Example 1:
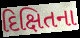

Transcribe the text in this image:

દિક્ષિતના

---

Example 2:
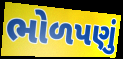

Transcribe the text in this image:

ભોળપણું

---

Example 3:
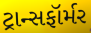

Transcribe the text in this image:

ટ્રાન્સફૉર્મર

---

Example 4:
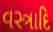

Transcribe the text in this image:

વસ્ત્રાદિ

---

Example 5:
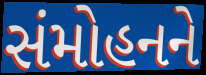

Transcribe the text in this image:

સંમોહનને